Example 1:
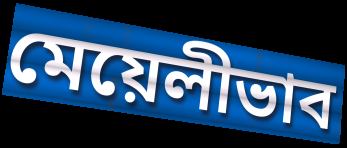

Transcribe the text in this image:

মেয়েলীভাব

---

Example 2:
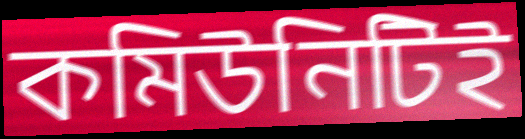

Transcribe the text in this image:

কমিউনিটিই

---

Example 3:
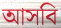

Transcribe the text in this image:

আসবি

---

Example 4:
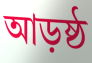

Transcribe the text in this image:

আড়ষ্ঠ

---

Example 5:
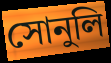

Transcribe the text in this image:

সোনুলি